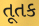
તૂતક